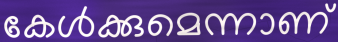
കേൾക്കുമെന്നാണ്